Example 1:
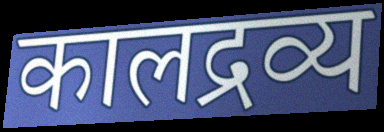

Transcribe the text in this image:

कालद्रव्य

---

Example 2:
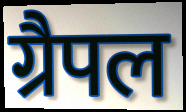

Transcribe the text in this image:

ग्रैपल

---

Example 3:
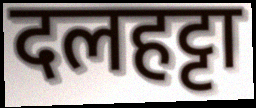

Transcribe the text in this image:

दलहट्टा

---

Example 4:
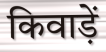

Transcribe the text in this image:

किवाड़ें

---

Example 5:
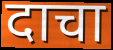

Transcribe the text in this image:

दाचा